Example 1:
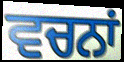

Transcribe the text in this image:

ਵਚਨਾਂ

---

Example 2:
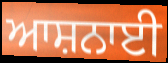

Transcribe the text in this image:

ਆਸ਼ਨਾਈ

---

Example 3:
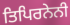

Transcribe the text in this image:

ਤਿਪਿਰਨੇਨੀ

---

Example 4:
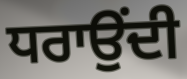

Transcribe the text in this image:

ਧਰਾਉਂਦੀ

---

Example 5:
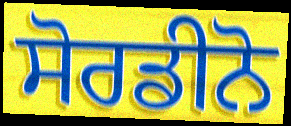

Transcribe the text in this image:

ਸੋਰਡੀਨੋ